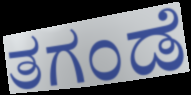
ತಗಂಡೆ